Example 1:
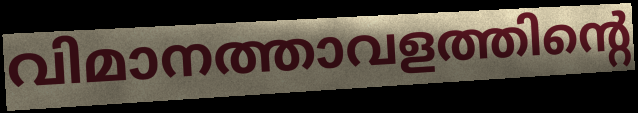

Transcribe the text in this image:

വിമാനത്താവളത്തിന്റെ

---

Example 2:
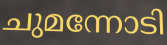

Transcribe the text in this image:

ചുമന്നോടി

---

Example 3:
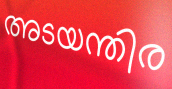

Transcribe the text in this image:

അടയന്തിര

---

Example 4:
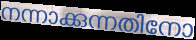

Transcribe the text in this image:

നന്നാക്കുന്നതിനോ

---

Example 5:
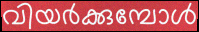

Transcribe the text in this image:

വിയർക്കുമ്പോൾ